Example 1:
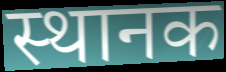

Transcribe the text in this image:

स्थानक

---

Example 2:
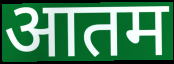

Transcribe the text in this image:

आतम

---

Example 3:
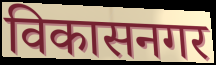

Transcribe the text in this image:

विकासनगर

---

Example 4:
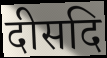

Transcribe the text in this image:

दीसदि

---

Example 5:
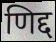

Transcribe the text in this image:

णिद्द